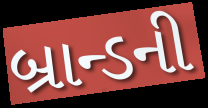
બ્રાન્ડની